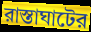
রাস্তাঘাটের